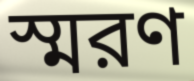
স্মরণ